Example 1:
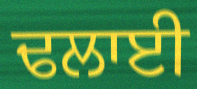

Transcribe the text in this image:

ਢਲਾਈ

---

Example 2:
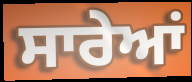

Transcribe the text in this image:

ਸਾਰੇਆਂ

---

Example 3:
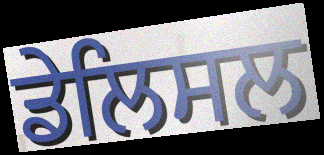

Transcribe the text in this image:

ਡੇਲਿਸਲ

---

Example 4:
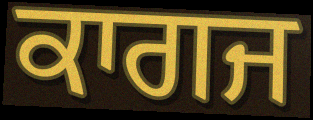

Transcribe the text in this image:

ਕਾਗਜ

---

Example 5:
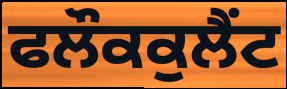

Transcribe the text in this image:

ਫਲੌਕਕੁਲੈਂਟ